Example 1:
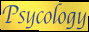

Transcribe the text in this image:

Psycology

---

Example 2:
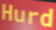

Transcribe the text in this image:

Hurd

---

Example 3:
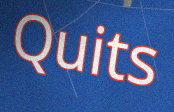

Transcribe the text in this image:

Quits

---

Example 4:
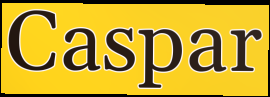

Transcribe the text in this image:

Caspar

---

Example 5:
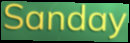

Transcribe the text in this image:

Sanday